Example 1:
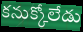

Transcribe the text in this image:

కనుక్కోలేడు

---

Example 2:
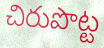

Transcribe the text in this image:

చిరుపొట్ట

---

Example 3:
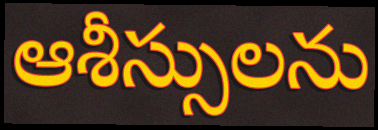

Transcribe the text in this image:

ఆశీస్సులను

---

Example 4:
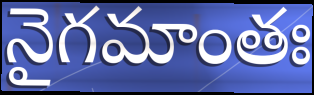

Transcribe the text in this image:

నైగమాంతః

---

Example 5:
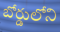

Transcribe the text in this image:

బోర్డులోని